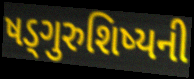
ષડ્ગુરુશિષ્યની